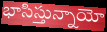
భాసిస్తున్నాయో